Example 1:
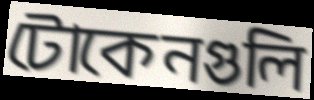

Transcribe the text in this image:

টোকেনগুলি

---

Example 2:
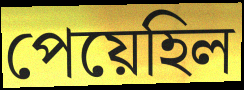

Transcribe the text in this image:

পেয়েহিল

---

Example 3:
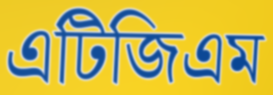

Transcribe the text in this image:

এটিজিএম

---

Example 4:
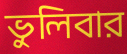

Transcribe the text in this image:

ভুলিবার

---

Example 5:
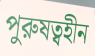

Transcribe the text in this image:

পুরুষত্বহীন